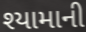
શ્યામાની